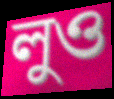
লুও